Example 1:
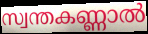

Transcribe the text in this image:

സ്വന്തകണ്ണാൽ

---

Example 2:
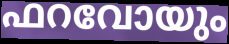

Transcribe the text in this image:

ഫറവോയും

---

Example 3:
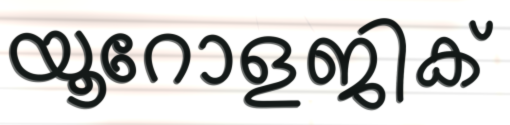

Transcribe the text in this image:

യൂറോളജിക്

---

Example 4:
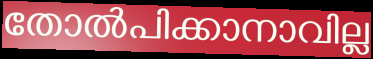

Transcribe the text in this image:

തോൽപിക്കാനാവില്ല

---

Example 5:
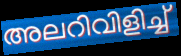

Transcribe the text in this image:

അലറിവിളിച്ച്